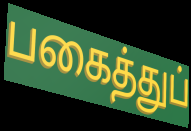
பகைத்துப்